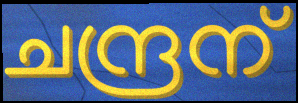
ചന്ദ്രന്